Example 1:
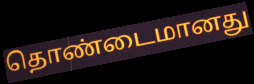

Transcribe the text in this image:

தொண்டைமானது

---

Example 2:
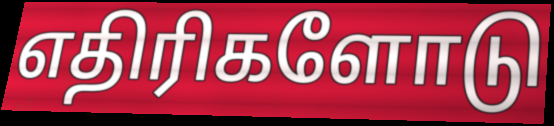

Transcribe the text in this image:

எதிரிகளோடு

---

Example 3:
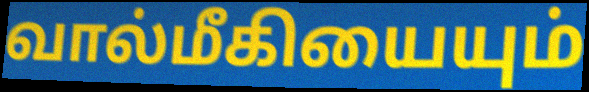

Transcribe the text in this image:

வால்மீகியையும்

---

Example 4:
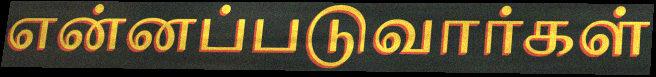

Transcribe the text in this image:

என்னப்படுவார்கள்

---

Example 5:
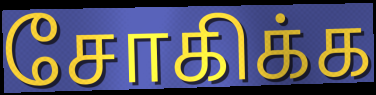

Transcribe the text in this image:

சோகிக்க